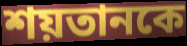
শয়তানকে